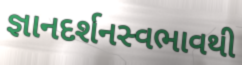
જ્ઞાનદર્શનસ્વભાવથી